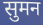
सुमन